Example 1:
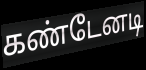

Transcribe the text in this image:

கண்டேனடி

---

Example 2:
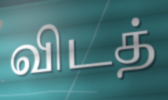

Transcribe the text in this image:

விடத்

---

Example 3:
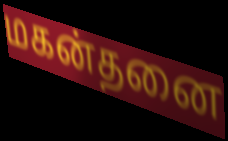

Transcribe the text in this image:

மகன்தனை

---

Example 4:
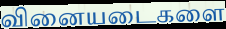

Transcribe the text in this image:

வினையடைகளை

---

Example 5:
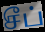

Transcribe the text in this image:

சீப்